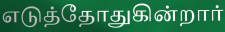
எடுத்தோதுகின்றார்